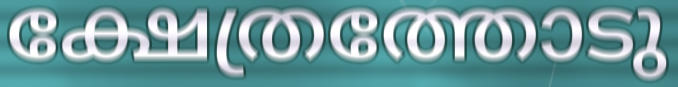
ക്ഷേത്രത്തോടു